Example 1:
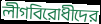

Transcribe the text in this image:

লীগবিরোধীদের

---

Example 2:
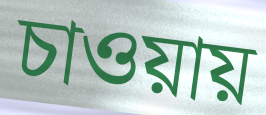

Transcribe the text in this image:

চাওয়ায়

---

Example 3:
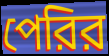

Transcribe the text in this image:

পেরির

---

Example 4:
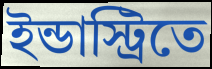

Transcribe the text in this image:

ইন্ডাস্ট্রিতে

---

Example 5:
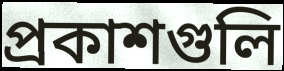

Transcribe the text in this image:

প্রকাশগুলি